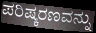
ಪರಿಷ್ಕರಣವನ್ನು